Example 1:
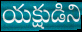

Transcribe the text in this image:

యక్షుడిని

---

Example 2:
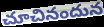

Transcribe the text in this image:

చూచినందున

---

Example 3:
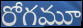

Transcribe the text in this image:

రోగమూ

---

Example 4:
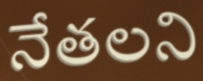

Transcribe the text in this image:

నేతలని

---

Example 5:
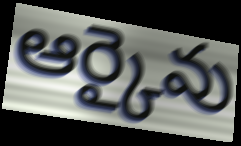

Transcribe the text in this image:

ఆర్కైవు